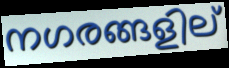
നഗരങ്ങളില്